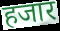
हजार